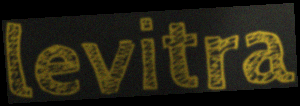
levitra